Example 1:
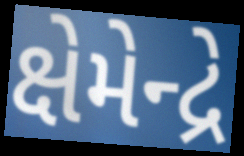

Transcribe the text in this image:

ક્ષેમેન્દ્રે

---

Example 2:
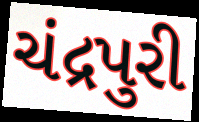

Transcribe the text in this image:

ચંદ્રપુરી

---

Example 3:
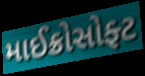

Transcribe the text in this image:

માઈક્રોસોફ્ટ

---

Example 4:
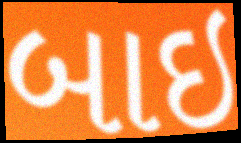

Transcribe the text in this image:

બાઇ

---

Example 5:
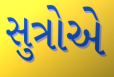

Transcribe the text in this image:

સુત્રોએ